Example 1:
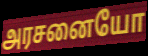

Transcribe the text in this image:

அரசனையோ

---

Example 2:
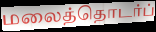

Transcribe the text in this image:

மலைத்தொடர்ப்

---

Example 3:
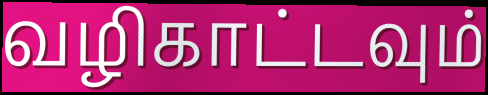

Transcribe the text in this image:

வழிகாட்டவும்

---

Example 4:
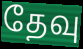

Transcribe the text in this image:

தேவு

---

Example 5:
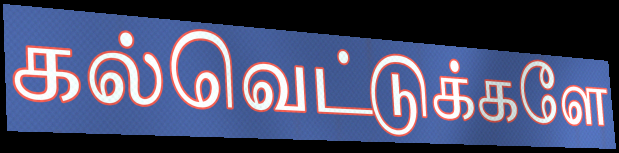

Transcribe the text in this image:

கல்வெட்டுக்களே